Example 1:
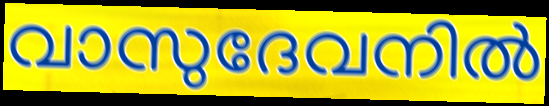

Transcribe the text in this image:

വാസുദേവനിൽ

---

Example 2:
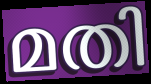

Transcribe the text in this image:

മതി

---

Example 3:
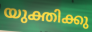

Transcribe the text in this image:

യുക്തിക്കു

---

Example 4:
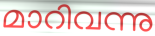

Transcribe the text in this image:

മാറിവന്നു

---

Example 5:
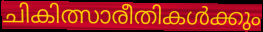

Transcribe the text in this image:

ചികിത്സാരീതികൾക്കും